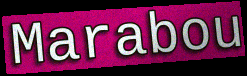
Marabou